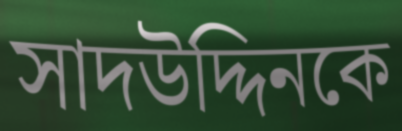
সাদউদ্দিনকে